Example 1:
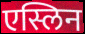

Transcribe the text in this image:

एस्लिन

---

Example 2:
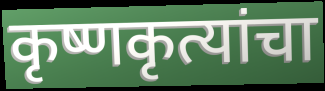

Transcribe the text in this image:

कृष्णकृत्यांचा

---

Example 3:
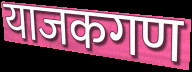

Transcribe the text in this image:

याजकगण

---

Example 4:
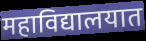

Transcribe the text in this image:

महाविद्यालयात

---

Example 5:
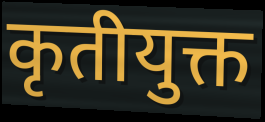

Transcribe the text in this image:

कृतीयुक्त